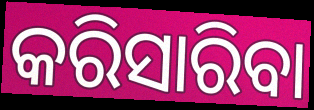
କରିସାରିବା